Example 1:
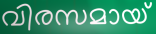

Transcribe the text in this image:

വിരസമായ്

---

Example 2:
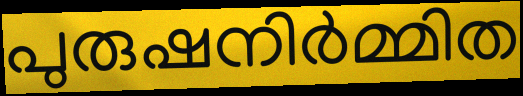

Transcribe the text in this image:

പുരുഷനിർമ്മിത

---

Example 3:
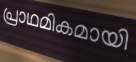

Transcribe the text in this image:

പ്രാഥമികമായി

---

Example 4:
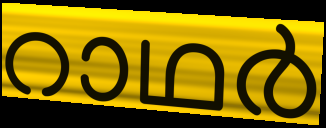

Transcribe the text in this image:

റാഥർ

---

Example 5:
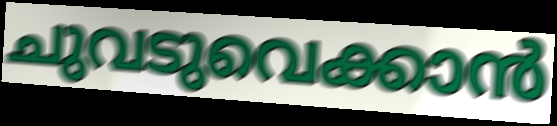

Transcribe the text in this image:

ചുവടുവെക്കാൻ